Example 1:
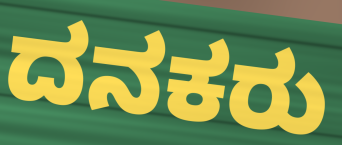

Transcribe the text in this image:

ದನಕರು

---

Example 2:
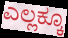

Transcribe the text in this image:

ಎಲ್ಲಕ್ಕೂ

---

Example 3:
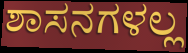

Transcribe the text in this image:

ಶಾಸನಗಳಲ್ಲ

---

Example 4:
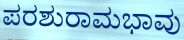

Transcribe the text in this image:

ಪರಶುರಾಮಭಾವು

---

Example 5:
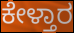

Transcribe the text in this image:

ಕೇಳ್ತಾರ